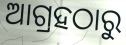
ଆଗ୍ରହଠାରୁ